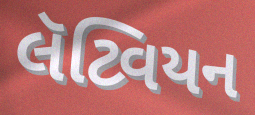
લૅટ્વિયન